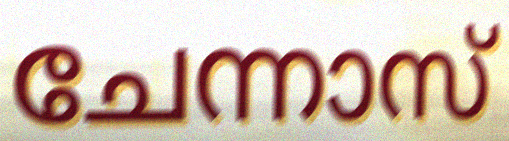
ചേന്നാസ്